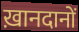
ख़ानदानों